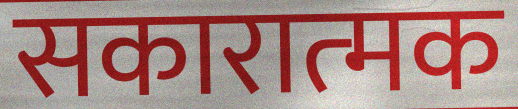
सकारात्‍मक